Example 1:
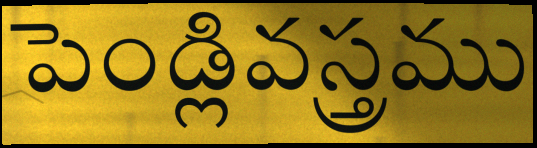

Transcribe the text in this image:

పెండ్లివస్త్రము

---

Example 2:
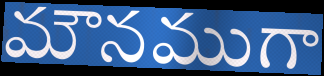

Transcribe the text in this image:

మౌనముగా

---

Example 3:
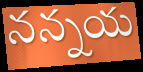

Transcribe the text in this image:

నన్నయ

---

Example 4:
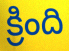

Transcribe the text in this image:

క్రింది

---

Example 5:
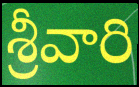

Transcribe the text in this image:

శ్రీవారి